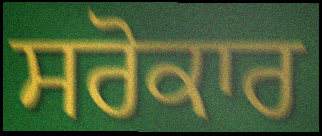
ਸਰੋਕਾਰ